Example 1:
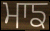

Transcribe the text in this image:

ਮਾਙ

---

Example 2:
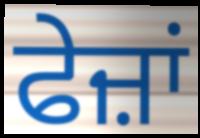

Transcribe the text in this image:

ਫੇਜ਼ਾਂ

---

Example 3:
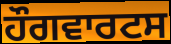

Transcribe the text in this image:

ਹੌਗਵਾਰਟਸ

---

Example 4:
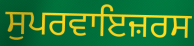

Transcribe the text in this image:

ਸੁਪਰਵਾਇਜ਼ਰਸ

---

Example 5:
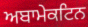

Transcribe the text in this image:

ਅਬਾਮੇਕਟਿਨ